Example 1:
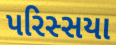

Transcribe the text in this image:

પરિસ્સયા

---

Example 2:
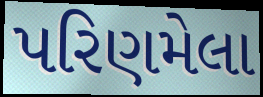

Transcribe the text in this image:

પરિણમેલા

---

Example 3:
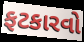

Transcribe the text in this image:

ફટકારવો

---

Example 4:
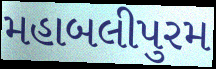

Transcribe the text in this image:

મહાબલીપુરમ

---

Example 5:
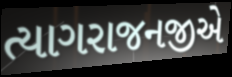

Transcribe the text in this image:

ત્યાગરાજનજીએ